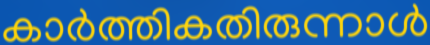
കാർത്തികതിരുന്നാൾ